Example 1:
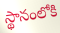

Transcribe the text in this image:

స్థానంలోకి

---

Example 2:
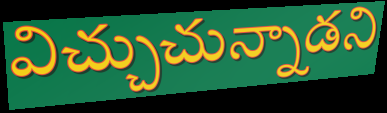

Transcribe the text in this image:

విచ్చుచున్నాడని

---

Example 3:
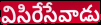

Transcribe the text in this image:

విసిరేసేవాడు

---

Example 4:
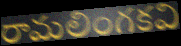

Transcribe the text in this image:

రామలింగకవి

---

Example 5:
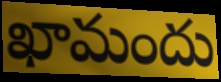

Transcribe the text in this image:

ఖామందు